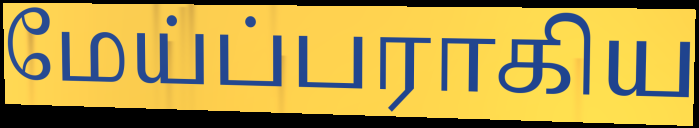
மேய்ப்பராகிய